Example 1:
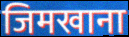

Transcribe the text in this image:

जिमखाना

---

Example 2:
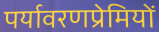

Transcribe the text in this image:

पर्यावरणप्रेमियों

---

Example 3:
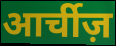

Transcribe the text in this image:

आर्चीज़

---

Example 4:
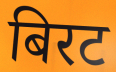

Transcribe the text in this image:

बिरट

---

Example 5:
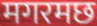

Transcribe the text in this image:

मगरमछ